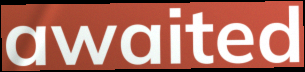
awaited